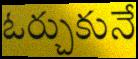
ఓర్చుకునే